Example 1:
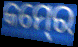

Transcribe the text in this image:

କମ୍‍ରେ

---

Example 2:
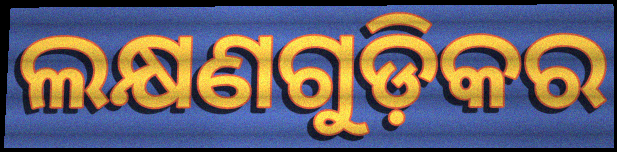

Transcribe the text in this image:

ଲକ୍ଷଣଗୁଡ଼ିକର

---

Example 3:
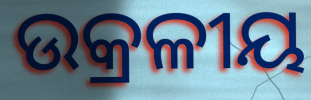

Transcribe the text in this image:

ଉକ୍ରଳୀୟ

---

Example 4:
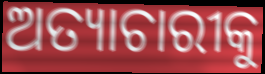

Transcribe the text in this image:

ଅତ୍ୟାଚାରୀକୁ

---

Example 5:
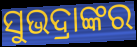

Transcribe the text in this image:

ସୁଭଦ୍ରାଙ୍କର